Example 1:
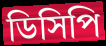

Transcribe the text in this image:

ডিসিপি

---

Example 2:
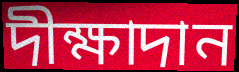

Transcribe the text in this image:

দীক্ষাদান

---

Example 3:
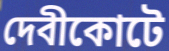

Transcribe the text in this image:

দেবীকোটে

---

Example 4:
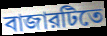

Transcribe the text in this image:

বাজারটিতে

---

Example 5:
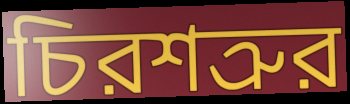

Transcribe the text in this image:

চিরশত্রুর